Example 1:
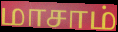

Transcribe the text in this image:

மாசாம்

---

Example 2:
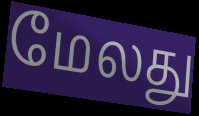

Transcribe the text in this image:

மேலது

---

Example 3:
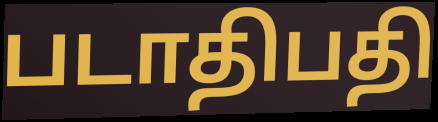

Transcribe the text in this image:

படாதிபதி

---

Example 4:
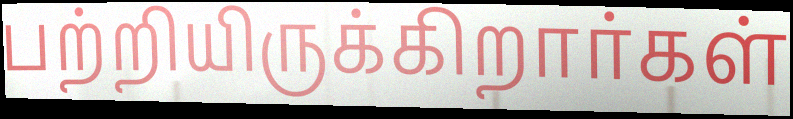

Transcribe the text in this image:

பற்றியிருக்கிறார்கள்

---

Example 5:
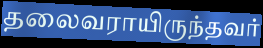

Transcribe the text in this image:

தலைவராயிருந்தவர்